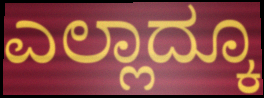
ಎಲ್ಲಾದ್ಕೂ